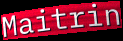
Maitrin